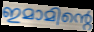
ഇമാമിന്റെ